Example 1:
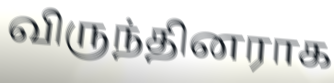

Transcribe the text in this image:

விருந்தினராக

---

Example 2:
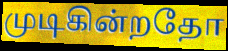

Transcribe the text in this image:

முடிகின்றதோ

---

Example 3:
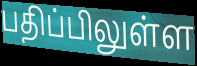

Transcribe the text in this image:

பதிப்பிலுள்ள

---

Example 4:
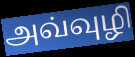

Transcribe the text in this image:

அவ்வுழி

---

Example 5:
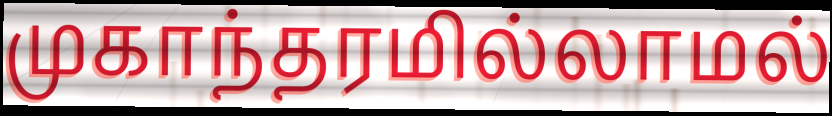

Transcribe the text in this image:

முகாந்தரமில்லாமல்